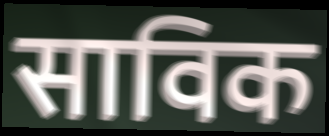
साविक